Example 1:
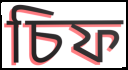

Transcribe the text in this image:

চিফ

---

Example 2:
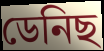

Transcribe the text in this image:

ডেনিছ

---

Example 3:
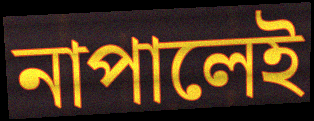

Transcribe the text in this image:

নাপালেই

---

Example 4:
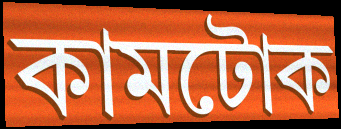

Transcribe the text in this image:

কামটোক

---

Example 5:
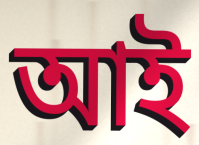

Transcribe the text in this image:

আই